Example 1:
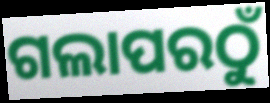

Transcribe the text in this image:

ଗଲାପରଠୁଁ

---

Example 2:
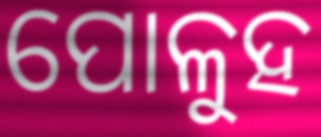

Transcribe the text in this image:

ପୋଳୁହ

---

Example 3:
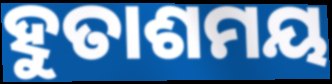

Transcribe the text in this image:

ହୁତାଶମୟ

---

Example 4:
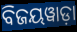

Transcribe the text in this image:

ବିଜୟୱାଡ଼ା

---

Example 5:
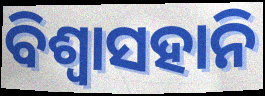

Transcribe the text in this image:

ବିଶ୍ବାସହାନି